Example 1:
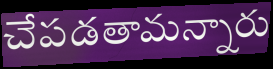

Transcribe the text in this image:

చేపడతామన్నారు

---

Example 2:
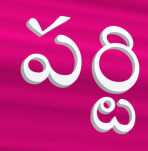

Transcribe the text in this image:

పర్టి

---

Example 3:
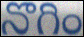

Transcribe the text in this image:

నొగిం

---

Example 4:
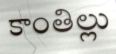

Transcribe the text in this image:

కాంతిల్లు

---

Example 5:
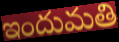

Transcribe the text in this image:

ఇందుమతి